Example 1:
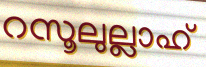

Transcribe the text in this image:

റസൂലുല്ലാഹ്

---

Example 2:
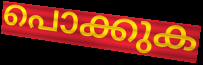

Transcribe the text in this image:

പൊക്കുക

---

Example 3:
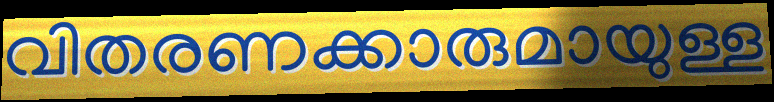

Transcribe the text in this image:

വിതരണക്കാരുമായുള്ള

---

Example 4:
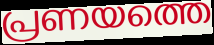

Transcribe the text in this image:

പ്രണയത്തെ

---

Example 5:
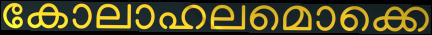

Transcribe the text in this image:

കോലാഹലമൊക്കെ